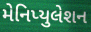
મેનિપ્યુલેશન